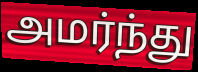
அமர்ந்து